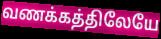
வணக்கத்திலேயே